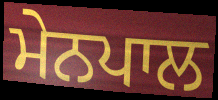
ਮੇਨਪਾਲ